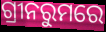
ଗ୍ରୀନରୁମରେ